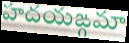
హదయఙ్గమా